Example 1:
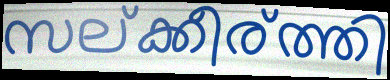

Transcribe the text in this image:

സല്ക്കീര്ത്തി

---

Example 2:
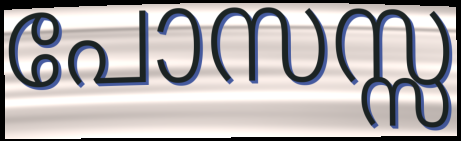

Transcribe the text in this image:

പോസസ്സ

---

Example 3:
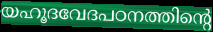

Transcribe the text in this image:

യഹൂദവേദപഠനത്തിന്റെ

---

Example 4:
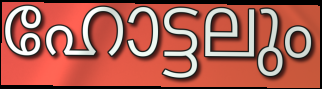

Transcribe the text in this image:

ഹോട്ടലും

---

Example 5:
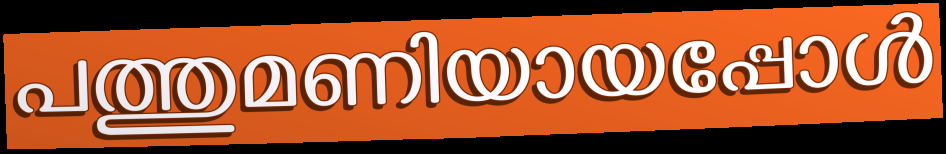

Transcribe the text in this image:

പത്തുമണിയായപ്പോൾ